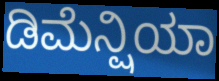
ಡಿಮೆನ್ಷಿಯಾ